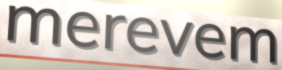
merevem